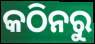
କଠିନରୁ